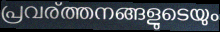
പ്രവര്ത്തനങ്ങളുടെയും